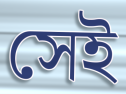
সেই